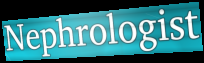
Nephrologist